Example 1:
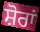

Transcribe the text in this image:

ਸ਼ੋਰਾਂ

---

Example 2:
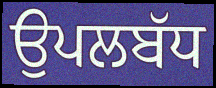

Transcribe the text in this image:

ਉਪਲਬੱਧ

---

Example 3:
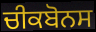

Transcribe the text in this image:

ਚੀਕਬੋਨਸ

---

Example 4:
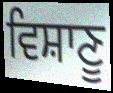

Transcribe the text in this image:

ਵਿਸ਼ਾਣੂ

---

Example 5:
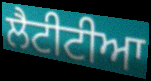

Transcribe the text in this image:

ਲੈਟੀਟੀਆ